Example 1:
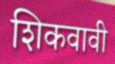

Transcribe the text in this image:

शिकवावी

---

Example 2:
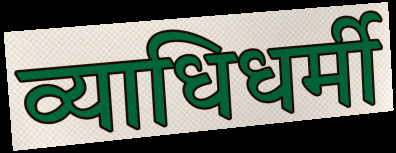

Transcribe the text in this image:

व्याधिधर्मी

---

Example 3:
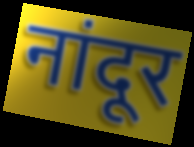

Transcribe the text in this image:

नांदूर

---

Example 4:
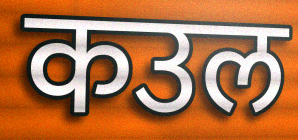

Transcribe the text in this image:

कउल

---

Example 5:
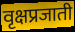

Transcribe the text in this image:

वृक्षप्रजाती